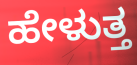
ಹೇಳುತ್ತ